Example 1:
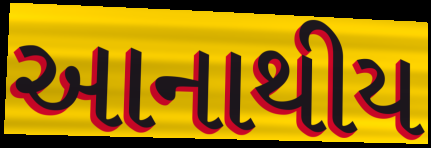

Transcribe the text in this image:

આનાથીય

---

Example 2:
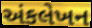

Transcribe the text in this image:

અંકલેખન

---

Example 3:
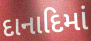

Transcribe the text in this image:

દાનાદિમાં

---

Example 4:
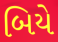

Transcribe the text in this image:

બિયે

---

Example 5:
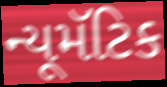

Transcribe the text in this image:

ન્યૂમૅટિક